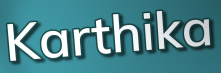
Karthika